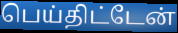
பெய்திட்டேன்